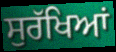
ਸੁਰੱਖਿਆਂ